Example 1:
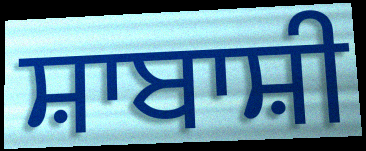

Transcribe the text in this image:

ਸ਼ਾਬਾਸ਼ੀ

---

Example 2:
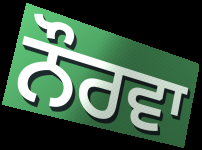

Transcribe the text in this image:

ਨੌਰਵਾ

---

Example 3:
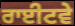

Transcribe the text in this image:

ਰਾਈਟਵੇ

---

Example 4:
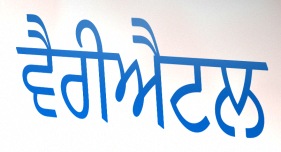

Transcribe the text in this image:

ਵੈਰੀਐਟਲ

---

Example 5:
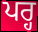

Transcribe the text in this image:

ਪਰ੍ਹ